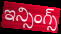
ఇన్సింగ్స్